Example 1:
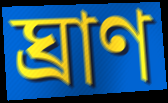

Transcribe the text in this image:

ঘ্রাণ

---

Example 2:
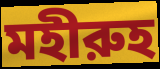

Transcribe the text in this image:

মহীরুহ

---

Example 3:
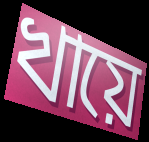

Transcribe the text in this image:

খায়ে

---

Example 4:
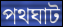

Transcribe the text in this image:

পথঘাট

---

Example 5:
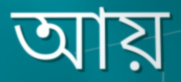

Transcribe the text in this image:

আয়